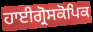
ਹਾਈਗ੍ਰੋਸਕੋਪਿਕ